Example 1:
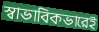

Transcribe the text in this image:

স্বাভাবিকভাৱেই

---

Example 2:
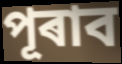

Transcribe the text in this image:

পূৰাব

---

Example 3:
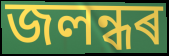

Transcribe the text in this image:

জলন্ধৰ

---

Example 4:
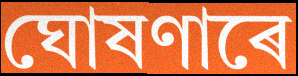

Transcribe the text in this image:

ঘোষণাৰে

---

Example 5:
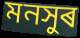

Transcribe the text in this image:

মনসুৰ